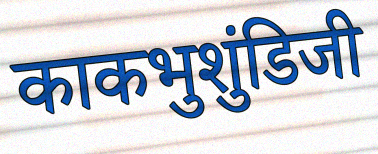
काकभुशुंडिजी